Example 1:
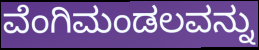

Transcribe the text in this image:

ವೆಂಗಿಮಂಡಲವನ್ನು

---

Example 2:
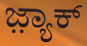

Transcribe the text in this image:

ಜ಼್ಯಾಕ್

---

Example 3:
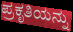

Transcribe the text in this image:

ಪ್ರಕೃತಿಯನ್ನು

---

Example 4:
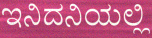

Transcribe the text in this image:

ಇನಿದನಿಯಲ್ಲಿ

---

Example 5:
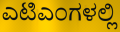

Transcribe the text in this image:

ಎಟಿಎಂಗಳಲ್ಲಿ